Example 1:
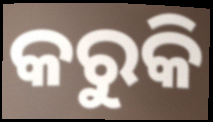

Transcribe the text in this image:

କରୁକି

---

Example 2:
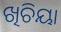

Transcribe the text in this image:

ଖିଚିୟା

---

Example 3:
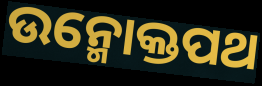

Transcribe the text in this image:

ଉନ୍ମୋକ୍ତପଥ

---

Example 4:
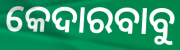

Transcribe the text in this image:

କେଦାରବାବୁ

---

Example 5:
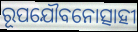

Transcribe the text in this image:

ରୂପଯୌବନୋତ୍ସାହୀ